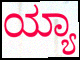
ಯ್ಯಾ